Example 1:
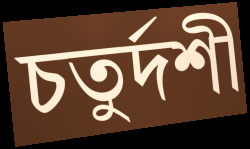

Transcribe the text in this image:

চতুৰ্দশী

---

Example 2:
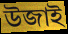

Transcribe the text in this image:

উজাই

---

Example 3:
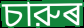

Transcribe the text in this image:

চাৰুৰ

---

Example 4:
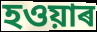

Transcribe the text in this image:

হওয়াৰ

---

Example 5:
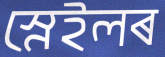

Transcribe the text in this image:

স্নেইলৰ